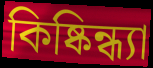
কিষ্কিন্ধ্যা